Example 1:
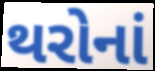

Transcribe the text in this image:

થરોનાં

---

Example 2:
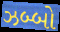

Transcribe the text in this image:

ઝબ્બો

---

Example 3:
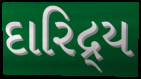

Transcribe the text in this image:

દારિદ્ર્ય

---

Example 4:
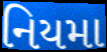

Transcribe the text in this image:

નિયમા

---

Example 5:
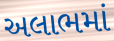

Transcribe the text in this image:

અલાભમાં